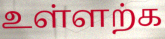
உள்ளற்க